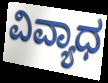
ವಿವ್ಯಾಧ